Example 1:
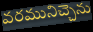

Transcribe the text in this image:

వరమునిచ్చెను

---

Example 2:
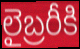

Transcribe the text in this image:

లైబ్రరీకి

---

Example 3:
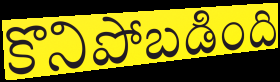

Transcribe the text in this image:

కొనిపోబడింది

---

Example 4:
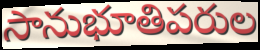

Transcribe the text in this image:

సానుభూతిపరుల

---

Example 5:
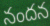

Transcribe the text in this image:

నందన